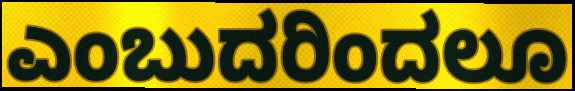
ಎಂಬುದರಿಂದಲೂ